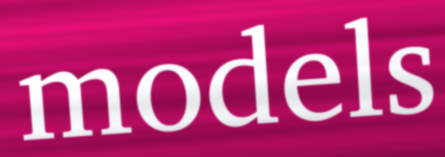
models